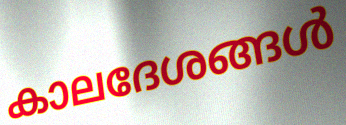
കാലദേശങ്ങൾ